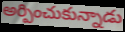
అర్పించుకున్నాడు